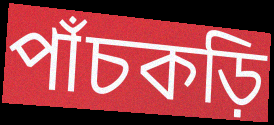
পাঁচকড়ি